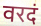
वरदं